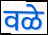
वळे